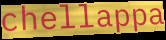
chellappa